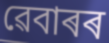
ৱেবাৰৰ